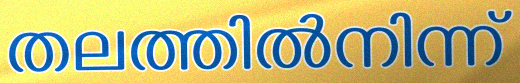
തലത്തിൽനിന്ന്